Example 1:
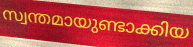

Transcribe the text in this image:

സ്വന്തമായുണ്ടാക്കിയ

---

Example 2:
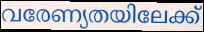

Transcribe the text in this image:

വരേണ്യതയിലേക്ക്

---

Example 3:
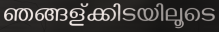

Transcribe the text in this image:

ഞങ്ങള്ക്കിടയിലൂടെ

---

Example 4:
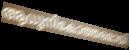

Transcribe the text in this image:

ആധുനികോത്തരമായി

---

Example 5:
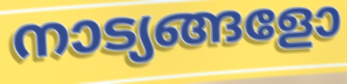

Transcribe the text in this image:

നാട്യങ്ങളോ